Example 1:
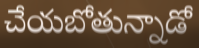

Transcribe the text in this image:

చేయబోతున్నాడో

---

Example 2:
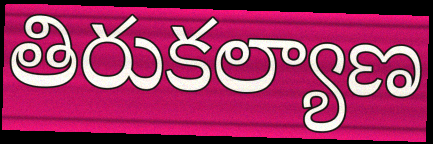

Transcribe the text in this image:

తిరుకల్యాణ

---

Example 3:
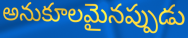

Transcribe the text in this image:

అనుకూలమైనప్పుడు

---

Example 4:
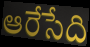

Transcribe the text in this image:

ఆరేసేది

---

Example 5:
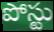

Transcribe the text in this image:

పోస్టు